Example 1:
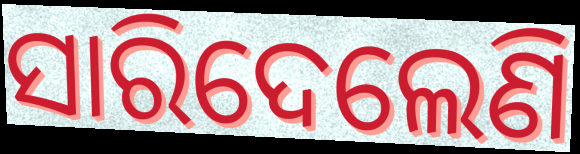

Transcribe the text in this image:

ସାରିଦେଲେଣି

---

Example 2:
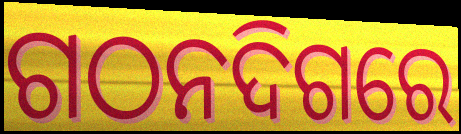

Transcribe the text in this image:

ଗଠନଦିଗରେ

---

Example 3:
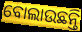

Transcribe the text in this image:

ବୋଲାଉଛନ୍ତି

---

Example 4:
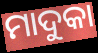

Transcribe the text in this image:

ମାଦୁକା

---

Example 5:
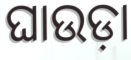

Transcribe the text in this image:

ଘାଉଡ଼ା